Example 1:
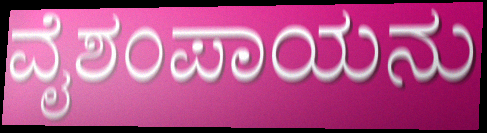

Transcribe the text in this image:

ವೈಶಂಪಾಯನು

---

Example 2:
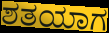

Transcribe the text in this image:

ಶತಯಾಗ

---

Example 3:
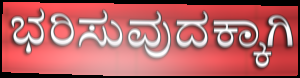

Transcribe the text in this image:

ಭರಿಸುವುದಕ್ಕಾಗಿ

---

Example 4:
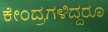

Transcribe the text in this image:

ಕೇಂದ್ರಗಳಿದ್ದರೂ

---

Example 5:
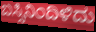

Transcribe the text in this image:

ಬಸ್ಸಿನಿಂದಿಳಿದು